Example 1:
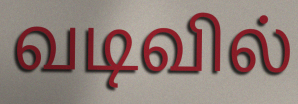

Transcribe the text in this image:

வடிவில்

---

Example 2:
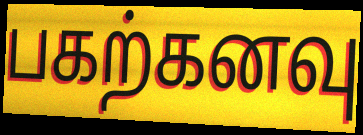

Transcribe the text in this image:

பகற்கனவு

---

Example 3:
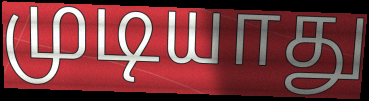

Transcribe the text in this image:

முடியாது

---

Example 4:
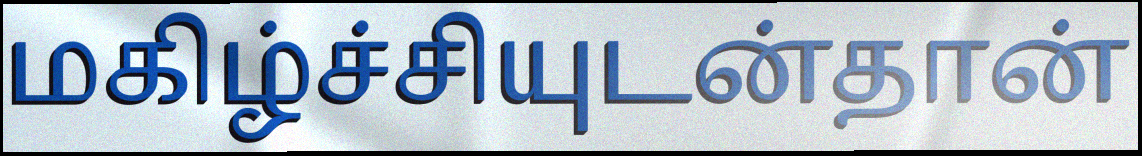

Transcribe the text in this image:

மகிழ்ச்சியுடன்தான்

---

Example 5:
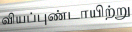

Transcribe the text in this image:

வியப்புண்டாயிற்று